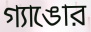
গ্যাঙোর